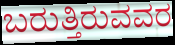
ಬರುತ್ತಿರುವವರ